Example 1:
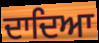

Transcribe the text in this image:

ਦਾਦਿਆ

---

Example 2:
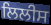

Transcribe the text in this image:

ਲਿਲੀਸ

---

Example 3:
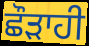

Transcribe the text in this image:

ਛੌੜਾਹੀ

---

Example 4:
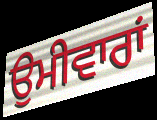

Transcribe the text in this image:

ਉਮੀਵਾਰਾਂ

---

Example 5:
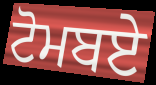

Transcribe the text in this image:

ਟੋਮਬਏ